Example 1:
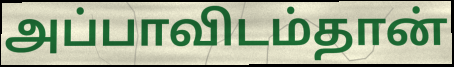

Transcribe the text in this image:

அப்பாவிடம்தான்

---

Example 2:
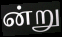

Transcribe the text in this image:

ன்று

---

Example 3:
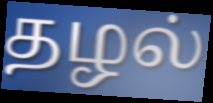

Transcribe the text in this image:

தழல்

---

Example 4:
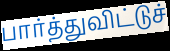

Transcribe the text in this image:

பார்த்துவிட்டுச்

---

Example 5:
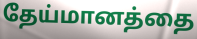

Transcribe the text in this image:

தேய்மானத்தை